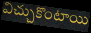
విచ్చుకొంటాయి